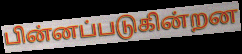
பின்னப்படுகின்றன